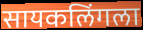
सायकलिंगला